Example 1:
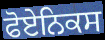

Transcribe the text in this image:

ਫੋਏਨਿਕਸ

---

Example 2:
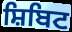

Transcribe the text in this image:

ਸ਼ਿਬਿਟ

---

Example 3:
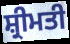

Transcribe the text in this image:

ਸ਼੍ਰੀਮਤੀ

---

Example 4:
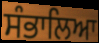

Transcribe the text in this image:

ਸੰਭਾਲਿਆ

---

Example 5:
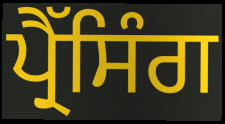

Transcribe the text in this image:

ਪ੍ਰੈੱਸਿੰਗ